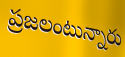
ప్రజలంటున్నారు